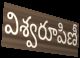
విశ్వరూపిణీ